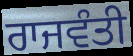
ਰਾਜਵੰਤੀ